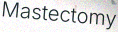
Mastectomy